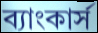
ব্যাংকার্স